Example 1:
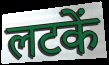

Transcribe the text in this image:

लटकें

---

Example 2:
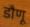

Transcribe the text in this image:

डौणू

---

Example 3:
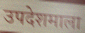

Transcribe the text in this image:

उपदेशमाला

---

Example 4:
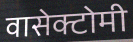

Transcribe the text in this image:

वासेक्टोमी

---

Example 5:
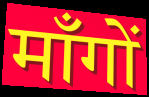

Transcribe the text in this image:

माँगों